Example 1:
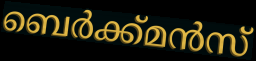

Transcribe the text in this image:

ബെർക്ക്മൻസ്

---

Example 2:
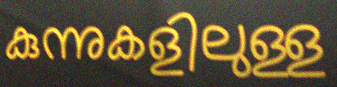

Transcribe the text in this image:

കുന്നുകളിലുള്ള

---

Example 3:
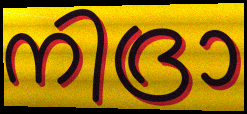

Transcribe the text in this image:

നിദ്രാ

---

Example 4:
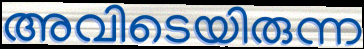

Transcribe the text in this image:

അവിടെയിരുന്ന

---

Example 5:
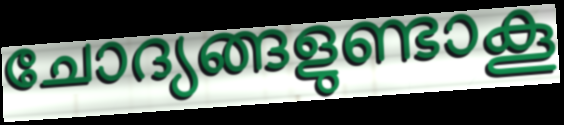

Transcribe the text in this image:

ചോദ്യങ്ങളുണ്ടാകൂ